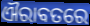
ଐରାବତରେ